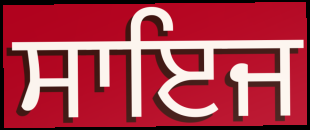
ਸਾਇਜ